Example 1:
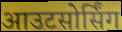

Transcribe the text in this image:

आउटसोर्सिंग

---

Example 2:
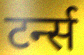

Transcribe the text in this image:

टर्न्स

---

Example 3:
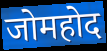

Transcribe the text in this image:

जोमहोद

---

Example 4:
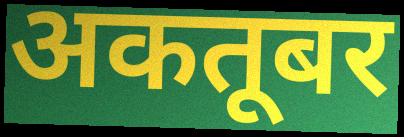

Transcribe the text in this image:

अकतूबर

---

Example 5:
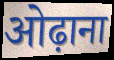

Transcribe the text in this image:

ओढ़ाना